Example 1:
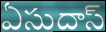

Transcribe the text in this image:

ఏసుదాస్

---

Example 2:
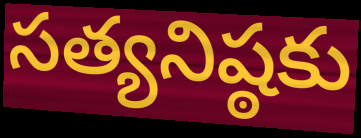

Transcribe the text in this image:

సత్యనిష్ఠకు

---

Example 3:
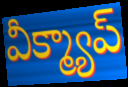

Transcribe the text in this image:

వీక్మ్యాప్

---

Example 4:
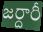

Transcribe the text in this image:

జర్దారీ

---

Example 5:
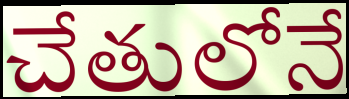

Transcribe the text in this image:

చేతులోనే